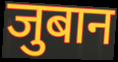
जुबान